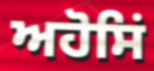
ਅਹੋਸਿਂ